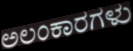
ಅಲಂಕಾರಗಳು